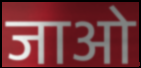
जाओ